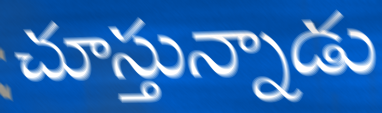
చూస్తున్నాడు